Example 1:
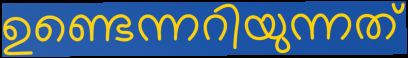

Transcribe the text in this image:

ഉണ്ടെന്നറിയുന്നത്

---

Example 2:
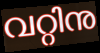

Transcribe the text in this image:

വറ്റിനു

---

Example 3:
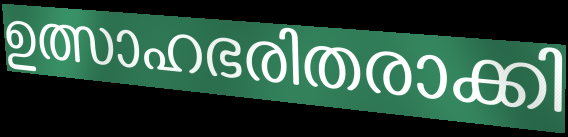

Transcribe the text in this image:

ഉത്സാഹഭരിതരാക്കി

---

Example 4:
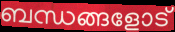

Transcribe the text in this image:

ബന്ധങ്ങളോട്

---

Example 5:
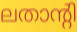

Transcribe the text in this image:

ലതാന്റി